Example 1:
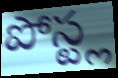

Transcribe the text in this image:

పోస్ట్ల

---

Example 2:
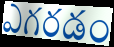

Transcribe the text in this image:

ఎగరడం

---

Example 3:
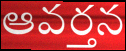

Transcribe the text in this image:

ఆవర్తన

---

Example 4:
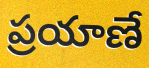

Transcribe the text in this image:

ప్రయాణే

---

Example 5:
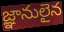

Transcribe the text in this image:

జ్ఞానులైన